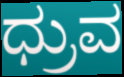
ಧ್ರುವ